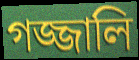
গজ্জালি